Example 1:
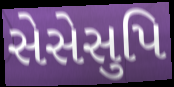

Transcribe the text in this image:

સેસેસુપિ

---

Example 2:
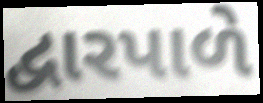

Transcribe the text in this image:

દ્વારપાળે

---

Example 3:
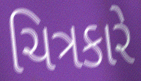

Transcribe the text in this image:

ચિત્રકારે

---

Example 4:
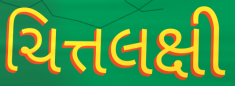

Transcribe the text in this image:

ચિત્તલક્ષી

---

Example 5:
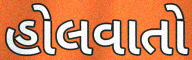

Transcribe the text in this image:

હોલવાતો